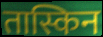
तास्किन